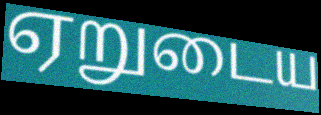
ஏறுடைய